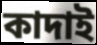
কাদাই